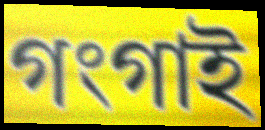
গংগাই